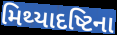
મિથ્યાદષ્ટિના